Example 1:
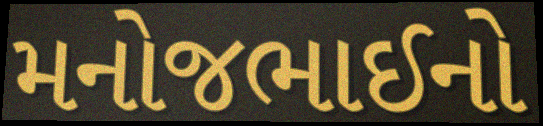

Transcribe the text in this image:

મનોજભાઈનો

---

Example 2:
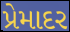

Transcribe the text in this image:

પ્રેમાદર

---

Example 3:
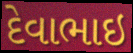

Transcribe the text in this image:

દેવાભાઇ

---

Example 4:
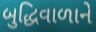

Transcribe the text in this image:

બુદ્ધિવાળાને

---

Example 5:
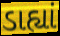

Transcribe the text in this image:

ડાહ્યાં